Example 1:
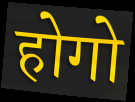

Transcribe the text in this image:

होगो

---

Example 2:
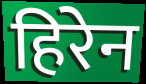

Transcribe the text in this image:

हिरेन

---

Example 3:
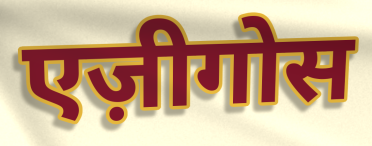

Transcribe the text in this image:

एज़ीगोस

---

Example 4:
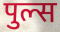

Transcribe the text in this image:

पुल्स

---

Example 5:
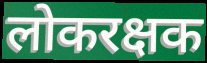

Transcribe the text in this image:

लोकरक्षक